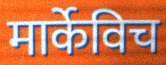
मार्केविच